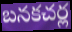
బనకచర్ల